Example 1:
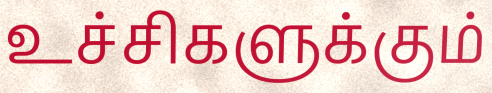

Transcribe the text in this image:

உச்சிகளுக்கும்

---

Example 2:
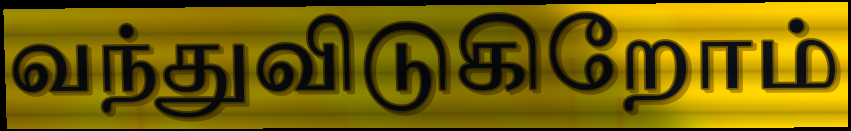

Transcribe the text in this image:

வந்துவிடுகிறோம்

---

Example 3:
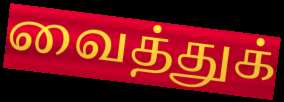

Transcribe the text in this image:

வைத்துக்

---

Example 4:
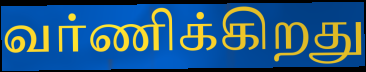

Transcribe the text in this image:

வர்ணிக்கிறது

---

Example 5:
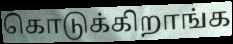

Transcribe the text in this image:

கொடுக்கிறாங்க